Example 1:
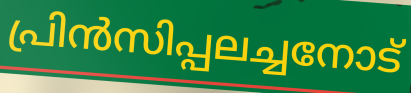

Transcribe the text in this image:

പ്രിൻസിപ്പലച്ചനോട്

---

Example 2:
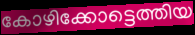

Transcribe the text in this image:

കോഴിക്കോട്ടെത്തിയ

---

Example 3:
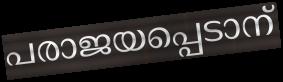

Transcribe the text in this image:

പരാജയപ്പെടാന്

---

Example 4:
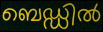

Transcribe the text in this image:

ബെഡ്ഡിൽ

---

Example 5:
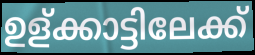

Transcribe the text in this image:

ഉള്ക്കാട്ടിലേക്ക്